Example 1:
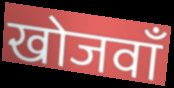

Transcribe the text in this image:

खोजवाँ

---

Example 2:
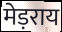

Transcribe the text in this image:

मेड़राय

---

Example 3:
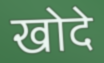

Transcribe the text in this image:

खोदे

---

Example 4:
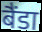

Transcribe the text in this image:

बैंडा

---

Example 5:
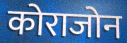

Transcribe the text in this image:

कोराजोन